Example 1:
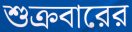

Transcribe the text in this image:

শুক্রবারের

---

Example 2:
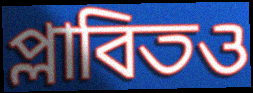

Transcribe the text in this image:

প্লাবিতও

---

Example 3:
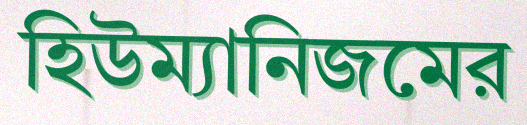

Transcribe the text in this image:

হিউম্যানিজমের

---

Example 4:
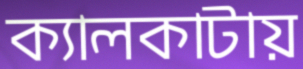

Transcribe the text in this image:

ক্যালকাটায়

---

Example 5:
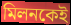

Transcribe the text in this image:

মিলনকেই